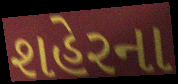
શહેરના